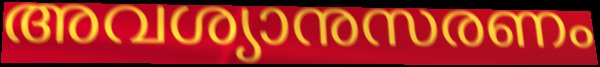
അവശ്യാനുസരണം